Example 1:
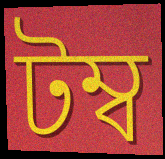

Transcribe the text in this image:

টম্ব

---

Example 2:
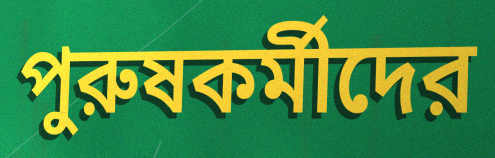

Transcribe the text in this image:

পুরুষকর্মীদের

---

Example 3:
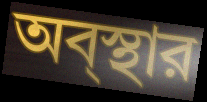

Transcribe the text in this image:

অব্স্থার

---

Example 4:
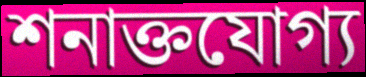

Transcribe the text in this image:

শনাক্তযোগ্য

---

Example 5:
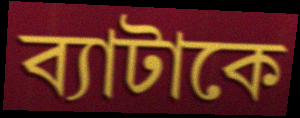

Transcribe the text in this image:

ব্যাটাকে